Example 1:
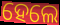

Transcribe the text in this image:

ହେଲେ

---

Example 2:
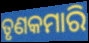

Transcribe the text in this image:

ତୃଣକମାରି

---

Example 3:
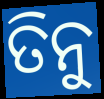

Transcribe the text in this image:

ତିନୁ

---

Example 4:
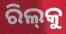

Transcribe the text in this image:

ରିଲ୍‌କୁ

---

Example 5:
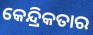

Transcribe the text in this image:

କେନ୍ଦ୍ରିକତାର